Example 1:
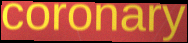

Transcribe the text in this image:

coronary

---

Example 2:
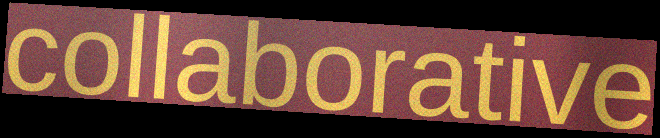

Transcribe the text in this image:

collaborative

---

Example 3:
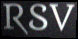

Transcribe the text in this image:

RSV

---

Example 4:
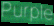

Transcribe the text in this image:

Purple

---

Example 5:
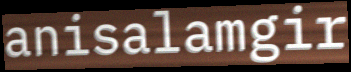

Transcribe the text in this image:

anisalamgir